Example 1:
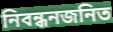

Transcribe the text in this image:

নিবন্ধনজনিত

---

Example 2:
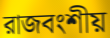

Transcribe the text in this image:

রাজবংশীয়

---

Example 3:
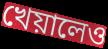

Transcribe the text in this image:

খেয়ালেও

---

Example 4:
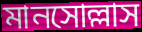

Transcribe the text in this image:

মানসোল্লাস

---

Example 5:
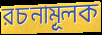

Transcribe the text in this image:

রচনামূলক